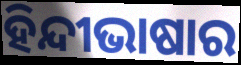
ହିନ୍ଦୀଭାଷାର